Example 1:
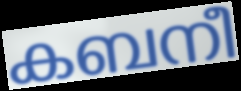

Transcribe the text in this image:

കബനീ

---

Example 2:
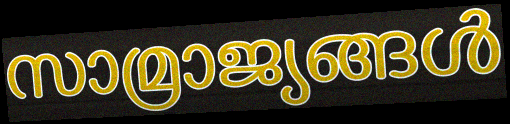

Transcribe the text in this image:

സാമ്രാജ്യങ്ങൾ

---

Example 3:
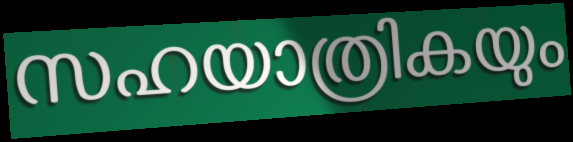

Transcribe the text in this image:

സഹയാത്രികയും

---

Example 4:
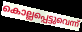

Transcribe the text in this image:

കൊല്ലപ്പെട്ടുവെന്ന്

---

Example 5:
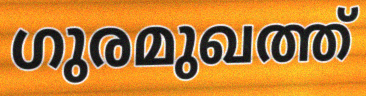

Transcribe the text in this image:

ഗുരമുഖത്ത്